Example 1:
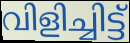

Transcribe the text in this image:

വിളിച്ചിട്ട്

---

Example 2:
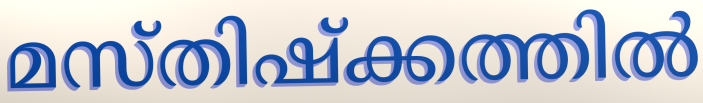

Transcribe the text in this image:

മസ്തിഷ്ക്കത്തിൽ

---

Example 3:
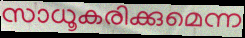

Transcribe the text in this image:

സാധൂകരിക്കുമെന്ന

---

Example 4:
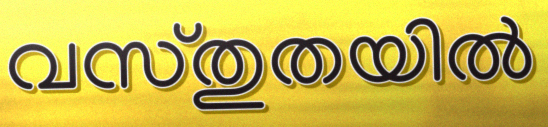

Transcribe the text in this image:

വസ്തുതയിൽ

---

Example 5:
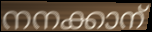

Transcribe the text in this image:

നനക്കാന്